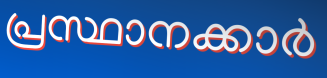
പ്രസ്ഥാനക്കാർ